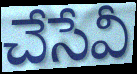
చేసేవీ